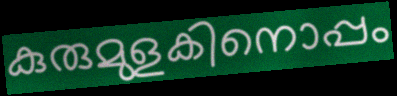
കുരുമുളകിനൊപ്പം